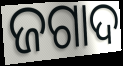
ଜଗାଦ